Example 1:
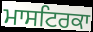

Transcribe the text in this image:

ਮਾਸਟਿਰਕਾ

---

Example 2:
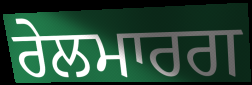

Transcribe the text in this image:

ਰੇਲਮਾਰਗ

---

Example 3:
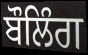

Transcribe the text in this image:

ਬੌਲਿੰਗ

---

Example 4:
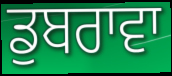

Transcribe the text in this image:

ਡੁਬਰਾਵਾ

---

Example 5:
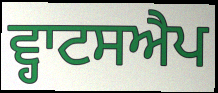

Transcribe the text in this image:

ਵ੍ਹਾਟਸਐਪ